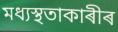
মধ্যস্থতাকাৰীৰ